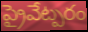
ప్రైవేట్పరం